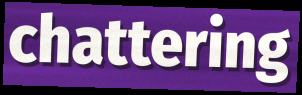
chattering